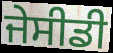
ਜੇਸੀਡੀ